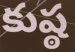
కుష్ఠ